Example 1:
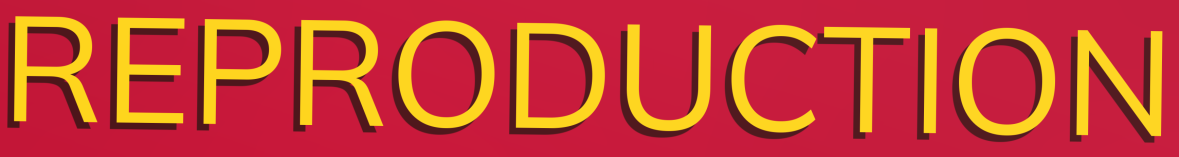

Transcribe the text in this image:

REPRODUCTION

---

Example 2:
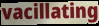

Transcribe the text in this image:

vacillating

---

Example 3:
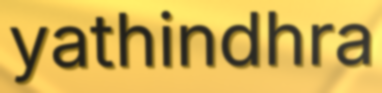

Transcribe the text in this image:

yathindhra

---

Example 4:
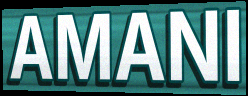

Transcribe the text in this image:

AMANI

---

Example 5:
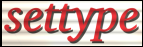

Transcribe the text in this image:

settype